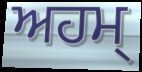
ਅਹਮ੍